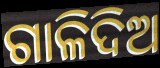
ଗାଳିଦିଅ